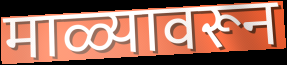
माळ्यावरून